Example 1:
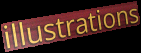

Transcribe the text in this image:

illustrations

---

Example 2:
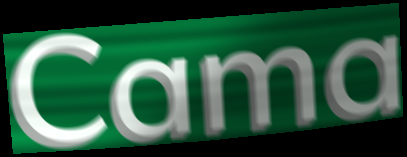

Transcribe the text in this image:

Cama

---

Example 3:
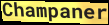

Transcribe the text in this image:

Champaner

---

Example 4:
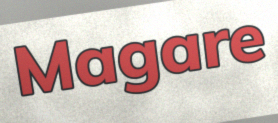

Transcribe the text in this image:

Magare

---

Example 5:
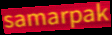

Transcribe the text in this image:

samarpak